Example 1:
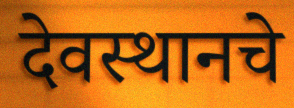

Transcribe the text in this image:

देवस्थानचे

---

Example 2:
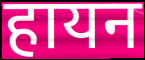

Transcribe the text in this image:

हायन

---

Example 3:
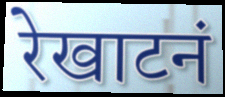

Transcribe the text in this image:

रेखाटनं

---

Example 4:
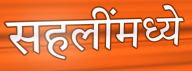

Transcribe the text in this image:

सहलींमध्ये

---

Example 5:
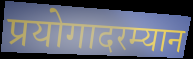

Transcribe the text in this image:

प्रयोगादरम्यान